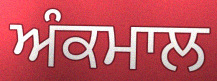
ਅੰਕਮਾਲ